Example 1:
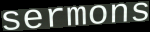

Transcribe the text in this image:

sermons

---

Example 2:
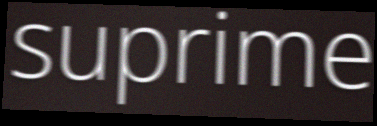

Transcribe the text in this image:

suprime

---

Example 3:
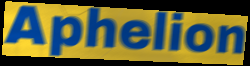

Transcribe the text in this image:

Aphelion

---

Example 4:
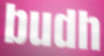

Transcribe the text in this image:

budh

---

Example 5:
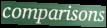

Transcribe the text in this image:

comparisons